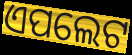
ଏପଲେଟ